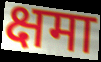
क्षमा